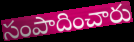
సంపాదించారు